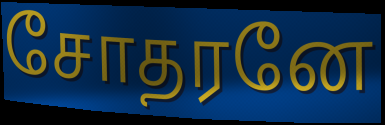
சோதரனே